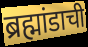
ब्रह्मांडाची